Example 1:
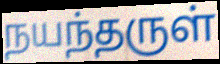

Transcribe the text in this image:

நயந்தருள்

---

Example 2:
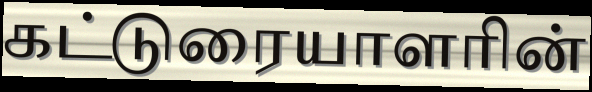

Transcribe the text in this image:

கட்டுரையாளரின்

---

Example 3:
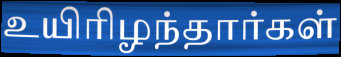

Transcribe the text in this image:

உயிரிழந்தார்கள்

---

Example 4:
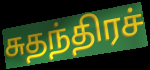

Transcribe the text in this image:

சுதந்திரச்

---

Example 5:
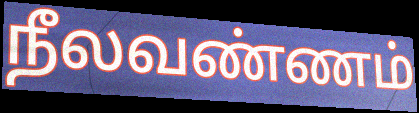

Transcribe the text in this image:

நீலவண்ணம்